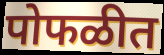
पोफळीत